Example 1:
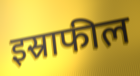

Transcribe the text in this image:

इस्राफील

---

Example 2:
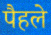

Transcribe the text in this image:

पैहले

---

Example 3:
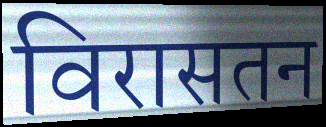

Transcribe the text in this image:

विरासतन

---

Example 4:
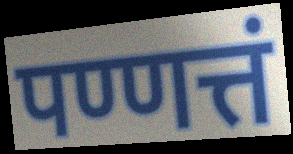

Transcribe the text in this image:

पण्णत्तं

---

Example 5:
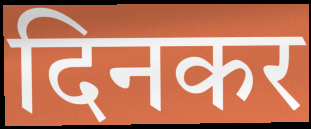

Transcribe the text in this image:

दिनकर